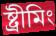
ষ্ট্ৰীমিং